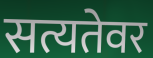
सत्यतेवर